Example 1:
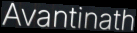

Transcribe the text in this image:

Avantinath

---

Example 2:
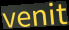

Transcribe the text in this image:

venit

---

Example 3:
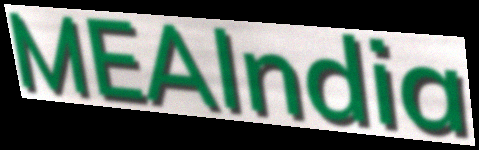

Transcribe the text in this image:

MEAIndia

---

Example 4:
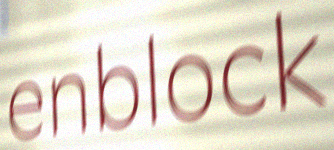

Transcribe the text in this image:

enblock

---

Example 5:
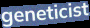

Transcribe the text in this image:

geneticist